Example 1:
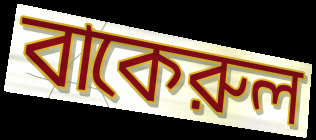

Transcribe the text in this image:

বাকেরুল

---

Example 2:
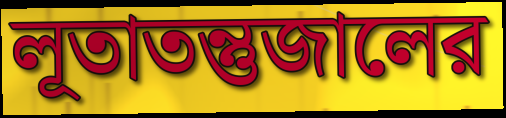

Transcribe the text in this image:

লূতাতন্তুজালের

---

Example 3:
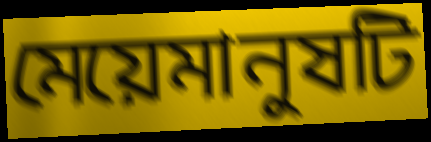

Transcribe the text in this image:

মেয়েমানুষটি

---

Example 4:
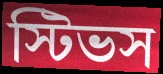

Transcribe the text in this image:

স্টিভস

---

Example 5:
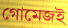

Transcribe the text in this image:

গোমেজই